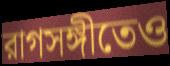
রাগসঙ্গীতেও